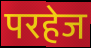
परहेज